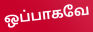
ஒப்பாகவே